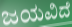
ಜಯವಿದೆ